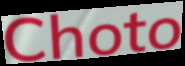
Choto